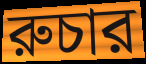
রুচার